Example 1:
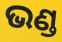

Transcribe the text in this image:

ଭଣ୍ଡ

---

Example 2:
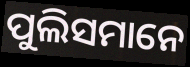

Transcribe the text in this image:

ପୁଲିସମାନେ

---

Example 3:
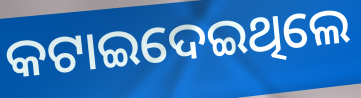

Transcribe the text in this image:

କଟାଇଦେଇଥିଲେ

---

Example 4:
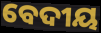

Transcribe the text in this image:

ବେଦୀୟ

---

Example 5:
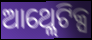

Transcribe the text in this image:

ଆଥ୍ଲେଟିକ୍ସ